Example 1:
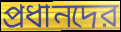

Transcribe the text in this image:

প্রধানদের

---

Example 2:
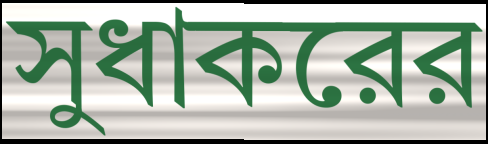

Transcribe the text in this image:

সুধাকরের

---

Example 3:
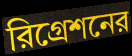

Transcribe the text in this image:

রিগ্রেশনের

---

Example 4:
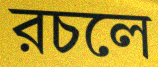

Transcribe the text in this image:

রচলে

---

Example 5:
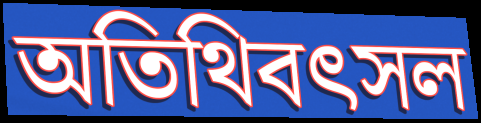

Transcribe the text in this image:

অতিথিবৎসল